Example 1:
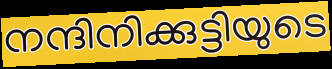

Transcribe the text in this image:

നന്ദിനിക്കുട്ടിയുടെ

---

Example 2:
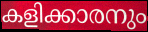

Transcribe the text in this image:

കളിക്കാരനും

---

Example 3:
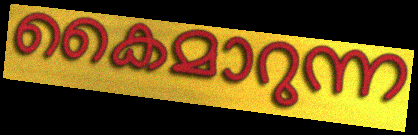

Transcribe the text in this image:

കൈമാറുന്ന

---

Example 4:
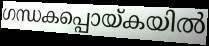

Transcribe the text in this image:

ഗന്ധകപ്പൊയ്കയിൽ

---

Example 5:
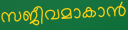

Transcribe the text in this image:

സജീവമാകാൻ